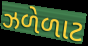
ઝળેળાટ